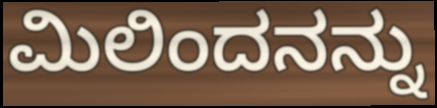
ಮಿಲಿಂದನನ್ನು